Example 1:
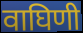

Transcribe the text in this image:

वाघिणी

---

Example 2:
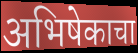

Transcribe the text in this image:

अभिषेकाचा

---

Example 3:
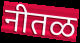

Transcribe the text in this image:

नीतळ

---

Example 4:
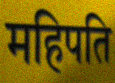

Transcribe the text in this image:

महिपति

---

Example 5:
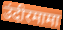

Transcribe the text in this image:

उंदीरमामा